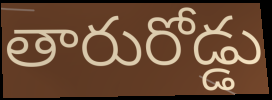
తారురోడ్డు